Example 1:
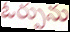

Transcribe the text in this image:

ఓర్పును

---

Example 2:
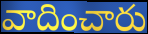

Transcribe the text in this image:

వాదించారు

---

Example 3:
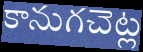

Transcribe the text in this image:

కానుగచెట్ల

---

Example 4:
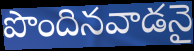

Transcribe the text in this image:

పొందినవాడనై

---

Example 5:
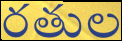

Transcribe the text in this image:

రతుల